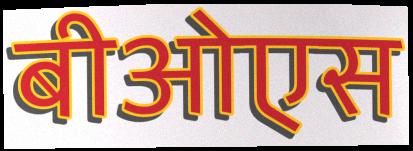
बीओएस